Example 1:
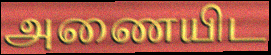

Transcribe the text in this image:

அணையிட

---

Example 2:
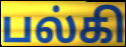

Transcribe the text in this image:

பல்கி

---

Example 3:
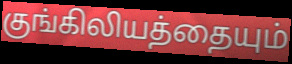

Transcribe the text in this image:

குங்கிலியத்தையும்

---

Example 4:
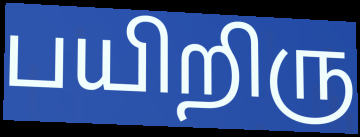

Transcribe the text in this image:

பயிறிரு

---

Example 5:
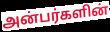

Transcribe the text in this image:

அன்பர்களின்